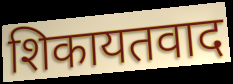
शिकायतवाद